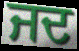
ਜਦ